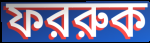
ফররুক